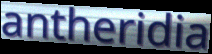
antheridia